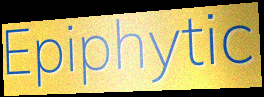
Epiphytic